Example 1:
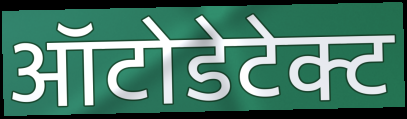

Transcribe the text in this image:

ऑटोडेटेक्ट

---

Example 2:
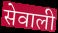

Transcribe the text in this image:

सेवाली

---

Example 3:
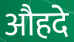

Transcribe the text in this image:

औहदे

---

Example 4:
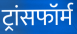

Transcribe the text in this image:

ट्रांसफॉर्म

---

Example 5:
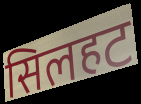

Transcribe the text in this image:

सिलहट